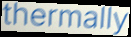
thermally